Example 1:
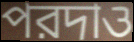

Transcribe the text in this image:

পরদাও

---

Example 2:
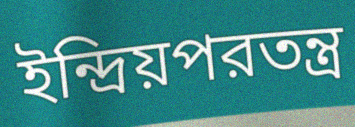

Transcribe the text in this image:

ইন্দ্রিয়পরতন্ত্র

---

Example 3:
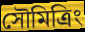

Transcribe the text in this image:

সৌমিত্রিং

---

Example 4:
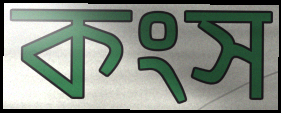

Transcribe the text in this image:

কংস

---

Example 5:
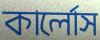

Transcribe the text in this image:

কার্লোস